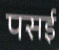
पसई